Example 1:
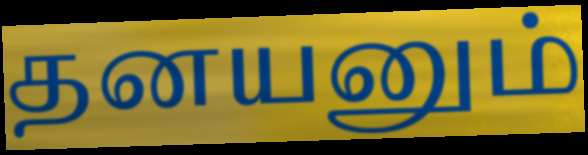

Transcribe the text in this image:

தனயனும்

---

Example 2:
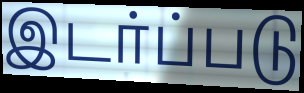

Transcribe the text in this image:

இடர்ப்படு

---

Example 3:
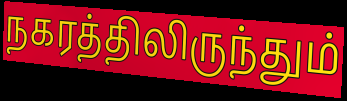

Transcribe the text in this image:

நகரத்திலிருந்தும்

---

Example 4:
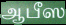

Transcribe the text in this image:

ஆபீஸ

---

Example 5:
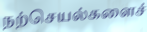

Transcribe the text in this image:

நற்செயல்களைச்